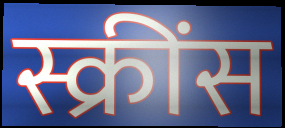
स्क्रींस